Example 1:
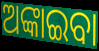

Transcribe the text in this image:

ଅଙ୍କାଇବା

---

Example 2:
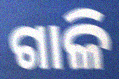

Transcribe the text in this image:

ଗାଳି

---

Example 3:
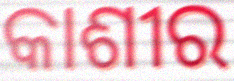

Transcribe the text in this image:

କାଶୀର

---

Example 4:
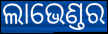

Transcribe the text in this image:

ଲାଭେଣ୍ଡର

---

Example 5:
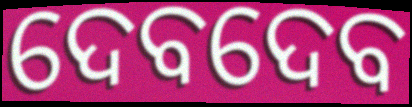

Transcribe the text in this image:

ଦେବଦେବ